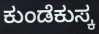
ಕುಂಡೆಕುಸ್ಕ